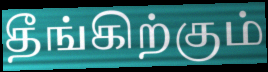
தீங்கிற்கும்